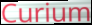
Curium